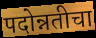
पदोन्नतीचा